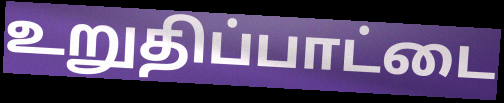
உறுதிப்பாட்டை